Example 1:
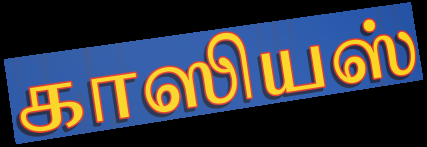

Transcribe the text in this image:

காஸியஸ்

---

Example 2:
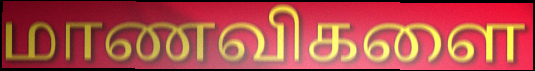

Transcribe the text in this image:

மாணவிகளை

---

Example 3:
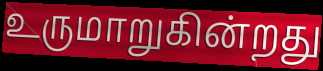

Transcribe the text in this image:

உருமாறுகின்றது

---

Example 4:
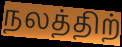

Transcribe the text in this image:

நலத்திற்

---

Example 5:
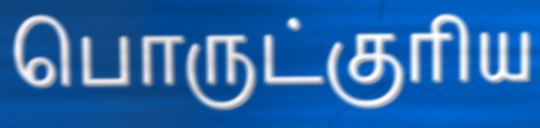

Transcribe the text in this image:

பொருட்குரிய